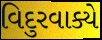
વિદુરવાક્યે